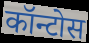
कॉन्टोस